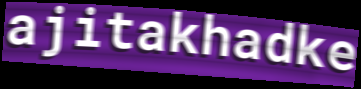
ajitakhadke